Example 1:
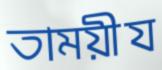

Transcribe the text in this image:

তাময়ীয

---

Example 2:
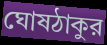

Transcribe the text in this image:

ঘোষঠাকুর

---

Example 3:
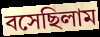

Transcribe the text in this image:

বসেছিলাম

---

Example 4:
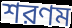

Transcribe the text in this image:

শরণম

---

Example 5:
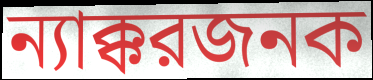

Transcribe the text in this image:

ন্যাক্করজনক